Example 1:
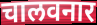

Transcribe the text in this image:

चालवनार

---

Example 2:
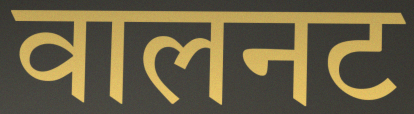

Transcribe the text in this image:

वालनट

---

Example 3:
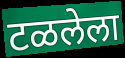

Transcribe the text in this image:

टळलेला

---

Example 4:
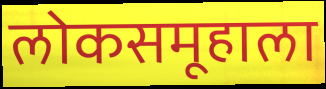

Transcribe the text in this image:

लोकसमूहाला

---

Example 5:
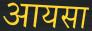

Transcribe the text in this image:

आयसा